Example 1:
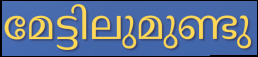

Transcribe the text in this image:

മേട്ടിലുമുണ്ടു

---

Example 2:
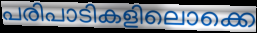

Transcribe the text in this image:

പരിപാടികളിലൊക്കെ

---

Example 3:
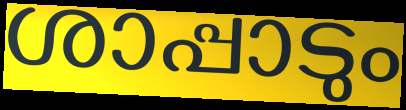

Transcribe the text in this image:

ശാപ്പാടും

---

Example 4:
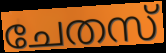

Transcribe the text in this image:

ചേതസ്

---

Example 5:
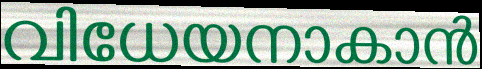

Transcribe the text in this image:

വിധേയനാകാൻ